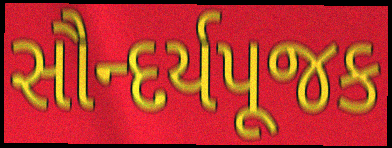
સૌન્દર્યપૂજક